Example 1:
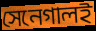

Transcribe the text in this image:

সেনেগালই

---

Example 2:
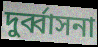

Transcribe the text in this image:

দুর্ব্বাসনা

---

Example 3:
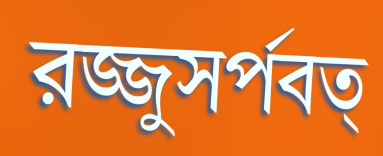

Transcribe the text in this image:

রজ্জুসর্পবত্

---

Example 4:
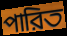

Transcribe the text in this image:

পারিত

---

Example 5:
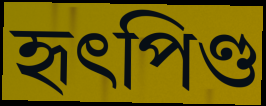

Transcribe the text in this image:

হৃৎপিণ্ড